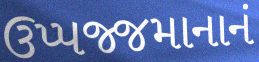
ઉપ્પજ્જમાનાનં